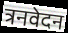
त्रनवेदन